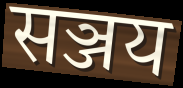
सञ्जय